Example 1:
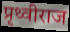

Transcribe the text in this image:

प्रृथ्वीराज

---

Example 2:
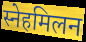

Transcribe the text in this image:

स्नेहमिलन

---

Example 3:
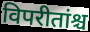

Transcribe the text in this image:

विपरीतांश्च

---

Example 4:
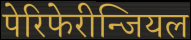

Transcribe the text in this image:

पेरिफेरीन्जियल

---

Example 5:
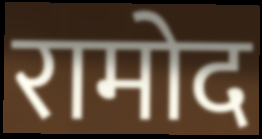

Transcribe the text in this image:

रामोद